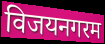
विजयनगरम